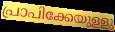
പ്രാപിക്കേയുളളു